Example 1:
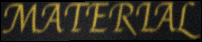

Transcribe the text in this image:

MATERIAL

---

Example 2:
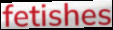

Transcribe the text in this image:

fetishes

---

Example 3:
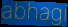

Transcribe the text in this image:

abhagi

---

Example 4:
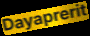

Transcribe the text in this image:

Dayaprerit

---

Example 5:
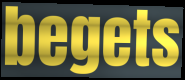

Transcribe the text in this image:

begets